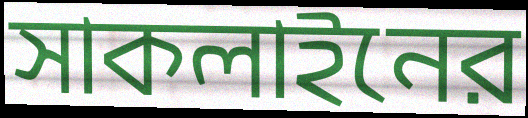
সাকলাইনের